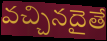
వచ్చినదైతే